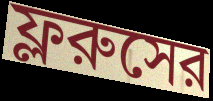
ফ্লরুসের